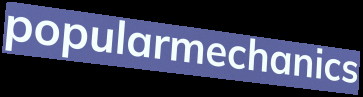
popularmechanics